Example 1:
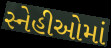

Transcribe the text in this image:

સ્નેહીઓમાં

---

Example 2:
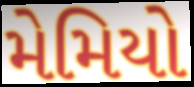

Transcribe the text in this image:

મેમિયો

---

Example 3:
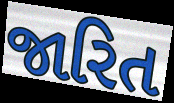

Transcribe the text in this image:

જારિત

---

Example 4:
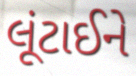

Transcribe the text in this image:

લૂંટાઈને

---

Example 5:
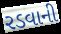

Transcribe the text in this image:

રડવાની